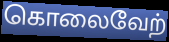
கொலைவேற்